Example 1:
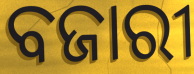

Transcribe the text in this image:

ବଜାରୀ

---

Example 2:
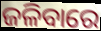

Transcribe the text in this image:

ଜଳିବାରେ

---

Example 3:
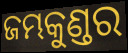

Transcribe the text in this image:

ଜମ୍ଭକୁଣ୍ଡର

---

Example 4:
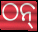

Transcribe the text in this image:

ଠନ୍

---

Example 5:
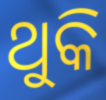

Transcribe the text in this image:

ଥୁକି